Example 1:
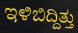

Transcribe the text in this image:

ಇಳಿಬಿದ್ದಿತ್ತು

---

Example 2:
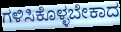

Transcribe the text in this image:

ಗಳಿಸಿಕೊಳ್ಳಬೇಕಾದ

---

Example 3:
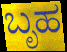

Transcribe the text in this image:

ಬೃಹ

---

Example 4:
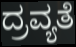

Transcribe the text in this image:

ದ್ರವ್ಯತೆ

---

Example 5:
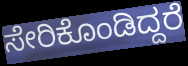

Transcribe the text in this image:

ಸೇರಿಕೊಂಡಿದ್ದರೆ